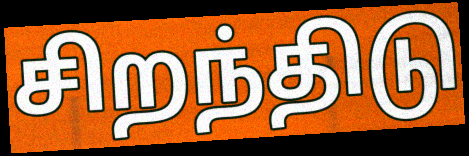
சிறந்திடு